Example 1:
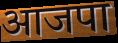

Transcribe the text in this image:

आजपा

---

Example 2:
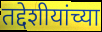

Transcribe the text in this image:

तद्देशीयांच्या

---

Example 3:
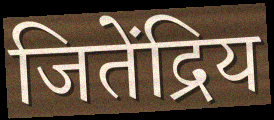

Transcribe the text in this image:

जितेंद्रिय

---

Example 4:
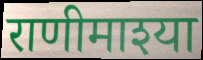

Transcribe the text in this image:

राणीमाश्या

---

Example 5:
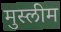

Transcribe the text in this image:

मुस्लीम